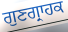
ਗੁਣਗ੍ਰਾਹਕ